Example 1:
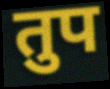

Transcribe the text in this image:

तुप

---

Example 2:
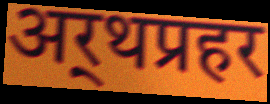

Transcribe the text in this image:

अर्थप्रहर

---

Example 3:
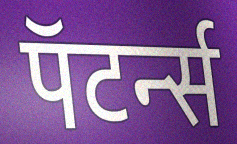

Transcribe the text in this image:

पॅटर्न्स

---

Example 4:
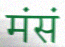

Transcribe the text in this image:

मंसं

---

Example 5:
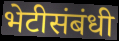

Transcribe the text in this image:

भेटीसंबंधी